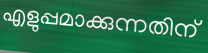
എളുപ്പമാക്കുന്നതിന്